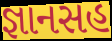
જ્ઞાનસહ